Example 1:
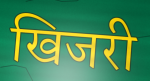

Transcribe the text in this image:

खिजरी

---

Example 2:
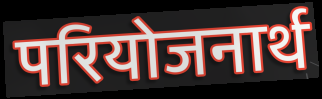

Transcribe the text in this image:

परियोजनार्थ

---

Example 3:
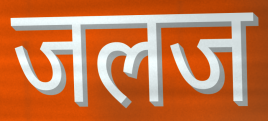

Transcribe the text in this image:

जलज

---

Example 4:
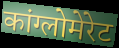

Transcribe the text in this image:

कांग्लोमेरेट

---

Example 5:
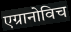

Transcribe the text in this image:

एग्रानोविच